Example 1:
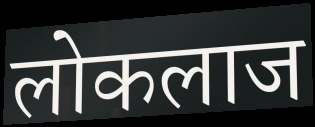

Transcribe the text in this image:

लोकलाज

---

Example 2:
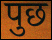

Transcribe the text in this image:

पुछ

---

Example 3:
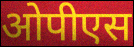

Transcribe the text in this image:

ओपीएस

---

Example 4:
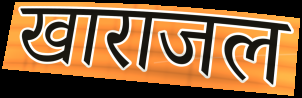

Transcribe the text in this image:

खाराजल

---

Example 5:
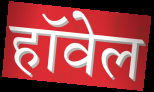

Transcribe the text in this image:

हॉवेल